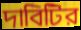
দাবিটির